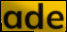
ade